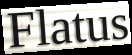
Flatus